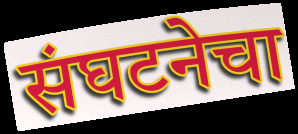
संघटनेचा